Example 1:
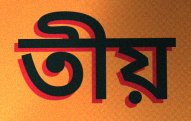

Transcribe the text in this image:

তীয়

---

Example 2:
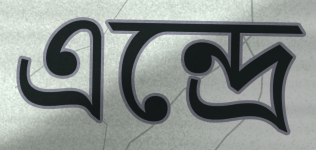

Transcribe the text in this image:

এন্দ্ৰে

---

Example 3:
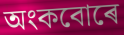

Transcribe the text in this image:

অংকবোৰে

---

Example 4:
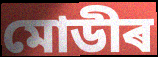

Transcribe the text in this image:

মোডীৰ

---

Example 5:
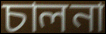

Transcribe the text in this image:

চালনা